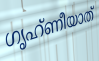
ഗൃഹ്ണീയാത്